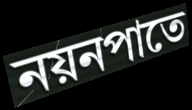
নয়নপাতে